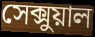
সেক্সুয়াল